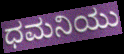
ಧಮನಿಯು